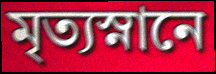
মৃত্যস্নানে